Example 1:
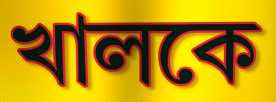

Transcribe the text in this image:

খালকে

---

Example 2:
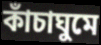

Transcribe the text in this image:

কাঁচাঘুমে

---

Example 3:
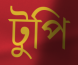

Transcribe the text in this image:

টুপি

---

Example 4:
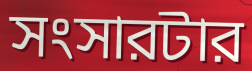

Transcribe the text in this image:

সংসারটার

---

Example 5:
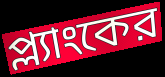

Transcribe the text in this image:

প্ল্যাংকের